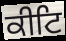
ਕੀਟਿ